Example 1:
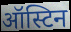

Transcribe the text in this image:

ऑस्टिन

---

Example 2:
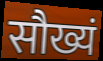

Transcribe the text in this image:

सौख्यं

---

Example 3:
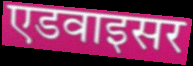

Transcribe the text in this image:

एडवाइसर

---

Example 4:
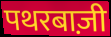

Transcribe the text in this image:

पथरबाज़ी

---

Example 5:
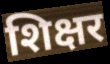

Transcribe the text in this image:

शिक्षर